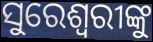
ସୁରେଶ୍ୱରୀଙ୍କୁ